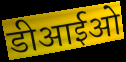
डीआईओ